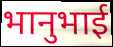
भानुभाई